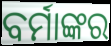
ବର୍ମାଙ୍କର